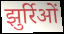
झुर्रिओं